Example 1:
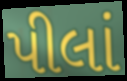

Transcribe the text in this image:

પીલાં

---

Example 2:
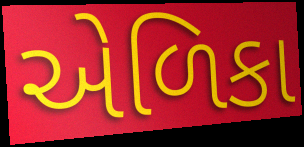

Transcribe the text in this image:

એળિકા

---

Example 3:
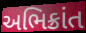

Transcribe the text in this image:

અભિક્રાંત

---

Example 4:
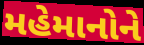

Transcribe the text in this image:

મહેમાનોને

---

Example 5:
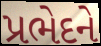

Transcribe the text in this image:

પ્રભેદને